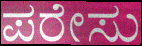
ಪರೇಸು